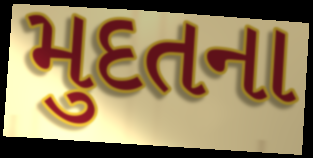
મુદતના